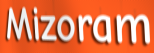
Mizoram